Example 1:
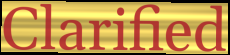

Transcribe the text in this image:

Clarified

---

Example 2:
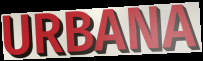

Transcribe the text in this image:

URBANA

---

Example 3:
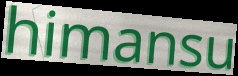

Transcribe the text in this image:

himansu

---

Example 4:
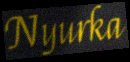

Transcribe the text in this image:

Nyurka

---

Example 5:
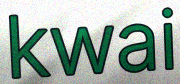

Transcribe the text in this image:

kwai